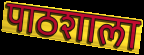
पाठशाला